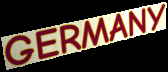
GERMANY